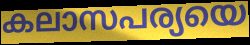
കലാസപര്യയെ